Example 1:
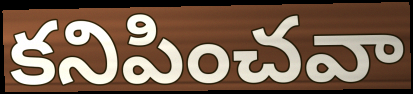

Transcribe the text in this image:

కనిపించవా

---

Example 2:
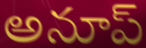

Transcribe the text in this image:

అనూప్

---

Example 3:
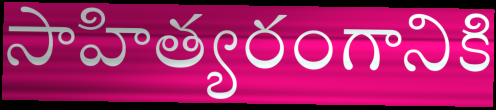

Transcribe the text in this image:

సాహిత్యరంగానికి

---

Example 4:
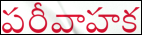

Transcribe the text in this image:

పరీవాహక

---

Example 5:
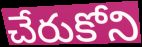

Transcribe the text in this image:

చేరుకోని